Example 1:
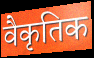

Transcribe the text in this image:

वैकृतिक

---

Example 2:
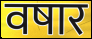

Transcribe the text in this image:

वषार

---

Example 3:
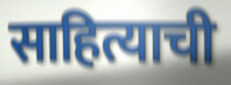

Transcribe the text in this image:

साहित्याची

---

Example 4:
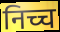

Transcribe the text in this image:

निच्च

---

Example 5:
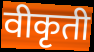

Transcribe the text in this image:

वीकृती